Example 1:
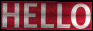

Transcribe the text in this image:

HELLO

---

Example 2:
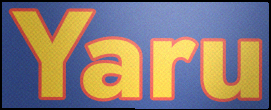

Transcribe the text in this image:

Yaru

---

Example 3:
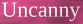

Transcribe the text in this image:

Uncanny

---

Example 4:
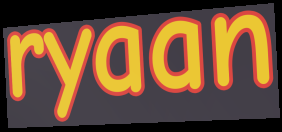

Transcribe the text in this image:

ryaan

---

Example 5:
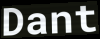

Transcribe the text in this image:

Dant